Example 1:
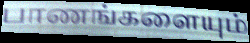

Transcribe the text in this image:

பாணங்களையும்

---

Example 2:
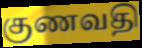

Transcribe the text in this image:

குணவதி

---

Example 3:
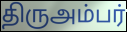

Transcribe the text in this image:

திருஅம்பர்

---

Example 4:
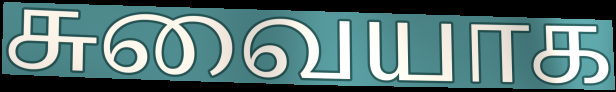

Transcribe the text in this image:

சுவையாக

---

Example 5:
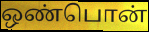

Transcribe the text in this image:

ஒண்பொன்